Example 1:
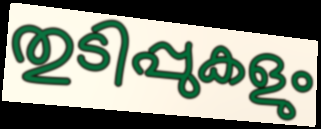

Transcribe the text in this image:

തുടിപ്പുകളും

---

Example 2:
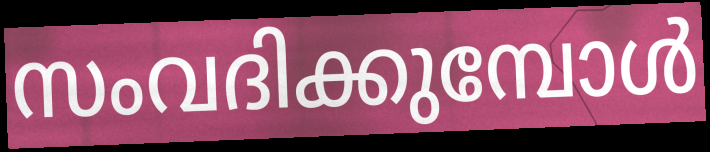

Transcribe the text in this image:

സംവദിക്കുമ്പോൾ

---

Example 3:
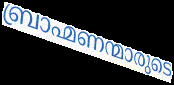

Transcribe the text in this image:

ബ്രാഹ്മണന്മാരുടെ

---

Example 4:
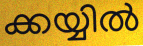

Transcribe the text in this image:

ക്കയ്യിൽ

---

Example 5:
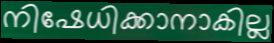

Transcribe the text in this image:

നിഷേധിക്കാനാകില്ല